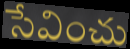
సేవించు